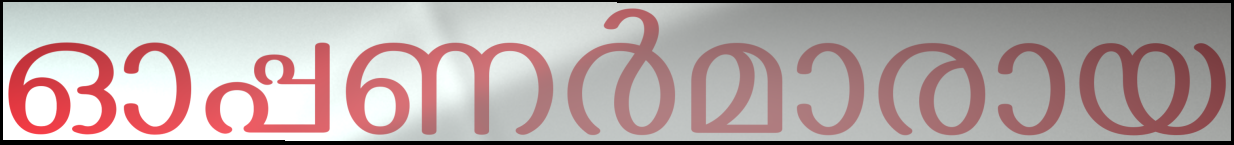
ഓപ്പണർമാരായ